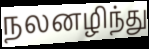
நலனழிந்து